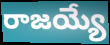
రాజయ్యే